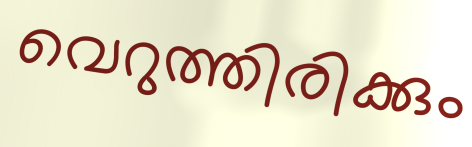
വെറുത്തിരിക്കും